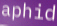
aphid